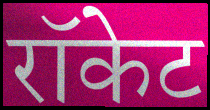
रॉकेट